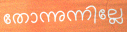
തോന്നുന്നില്ലേ